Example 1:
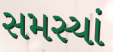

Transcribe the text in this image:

સમસ્યાં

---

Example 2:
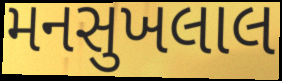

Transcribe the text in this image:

મનસુખલાલ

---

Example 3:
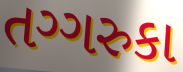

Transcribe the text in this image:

તગ્ગરુકા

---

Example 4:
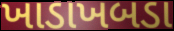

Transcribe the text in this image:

ખાડાખબડા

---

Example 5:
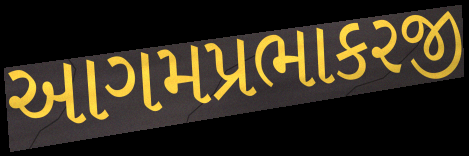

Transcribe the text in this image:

આગમપ્રભાકરજી